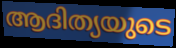
ആദിത്യയുടെ